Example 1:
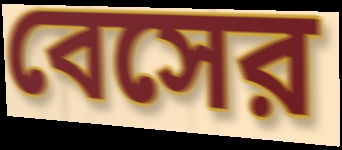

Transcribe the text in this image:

বেসের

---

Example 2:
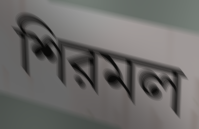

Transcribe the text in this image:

শিরমল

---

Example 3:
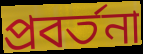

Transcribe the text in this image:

প্রবর্তনা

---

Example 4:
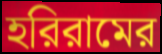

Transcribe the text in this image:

হরিরামের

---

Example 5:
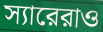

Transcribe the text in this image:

স্যারেরাও